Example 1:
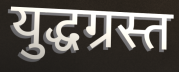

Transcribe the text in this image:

युद्धग्रस्त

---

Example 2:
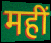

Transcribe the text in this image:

महीं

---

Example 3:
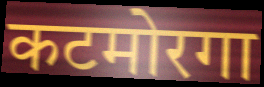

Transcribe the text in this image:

कटमोरगा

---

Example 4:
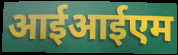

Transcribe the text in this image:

आईआईएम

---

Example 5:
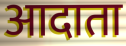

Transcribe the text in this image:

आदाता